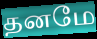
தனமே